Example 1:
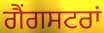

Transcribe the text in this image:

ਗੈਂਗਸਟਰਾਂ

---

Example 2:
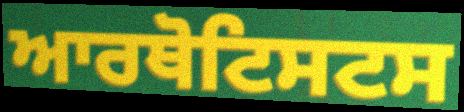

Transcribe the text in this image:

ਆਰਥੋਟਿਸਟਸ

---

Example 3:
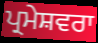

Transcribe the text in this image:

ਪ੍ਰਮੇਸ਼ਵਰਾ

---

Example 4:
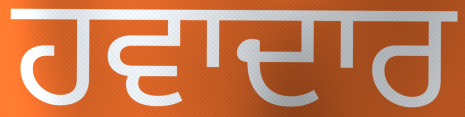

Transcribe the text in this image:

ਹਵਾਦਾਰ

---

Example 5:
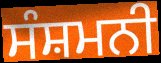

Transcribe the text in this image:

ਸੰਸ਼ਮਨੀ